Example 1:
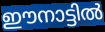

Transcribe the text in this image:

ഈനാട്ടിൽ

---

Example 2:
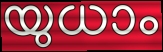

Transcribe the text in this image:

യുധാം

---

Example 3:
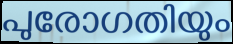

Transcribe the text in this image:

പുരോഗതിയും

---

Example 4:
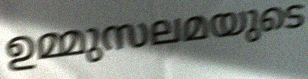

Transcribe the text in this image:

ഉമ്മുസലമയുടെ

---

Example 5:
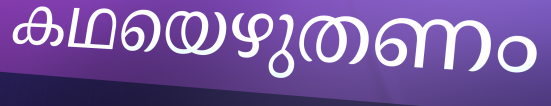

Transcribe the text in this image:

കഥയെഴുതണം